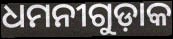
ଧମନୀଗୁଡ଼ାକ